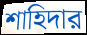
শাহিদার